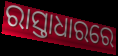
ରାସ୍ତାଧାରରେ